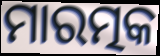
ମାରତ୍ମକ